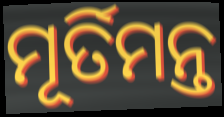
ମୂର୍ତିମନ୍ତ